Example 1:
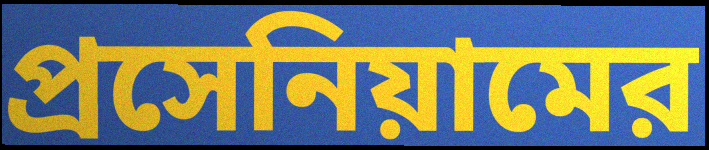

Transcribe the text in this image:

প্রসেনিয়ামের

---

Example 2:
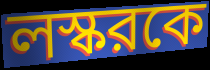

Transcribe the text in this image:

লস্করকে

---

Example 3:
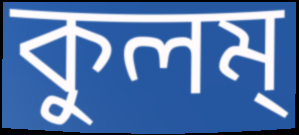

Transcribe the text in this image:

কুলম্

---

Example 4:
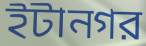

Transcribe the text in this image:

ইটানগর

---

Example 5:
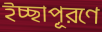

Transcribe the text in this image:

ইচ্ছাপূরণে